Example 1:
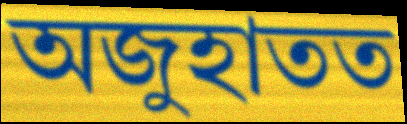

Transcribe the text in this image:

অজুহাতত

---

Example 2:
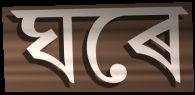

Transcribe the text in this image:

ঘৰে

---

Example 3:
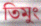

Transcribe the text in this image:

তিমুং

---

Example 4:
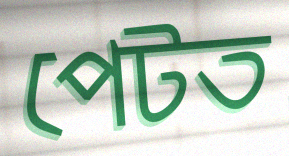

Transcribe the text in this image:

পেটত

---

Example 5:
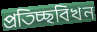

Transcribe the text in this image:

প্ৰতিচ্ছবিখন